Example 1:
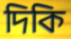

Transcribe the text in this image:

দিকি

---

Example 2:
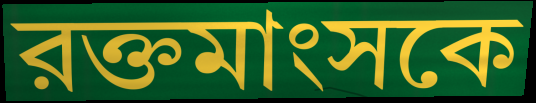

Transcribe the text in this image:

রক্তমাংসকে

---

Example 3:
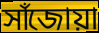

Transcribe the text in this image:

সাঁজোয়া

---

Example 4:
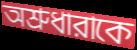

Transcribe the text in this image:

অশ্রুধারাকে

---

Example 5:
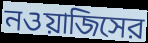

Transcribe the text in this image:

নওয়াজিসের